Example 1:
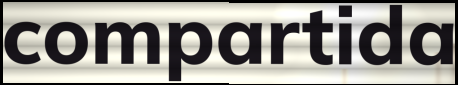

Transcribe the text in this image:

compartida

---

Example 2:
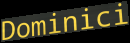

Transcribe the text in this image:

Dominici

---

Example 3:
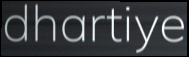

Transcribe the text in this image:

dhartiye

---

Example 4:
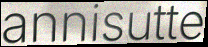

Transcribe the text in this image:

annisutte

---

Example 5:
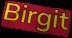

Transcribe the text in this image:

Birgit